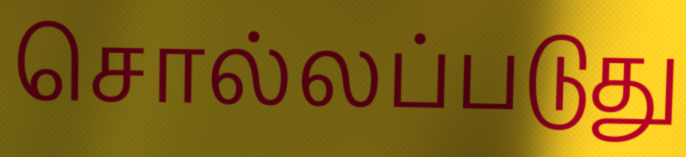
சொல்லப்படுது